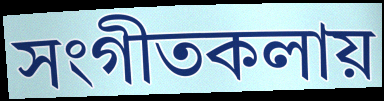
সংগীতকলায়